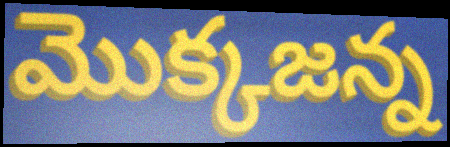
మొక్కజన్న